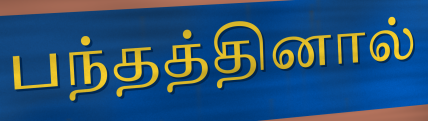
பந்தத்தினால்